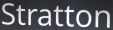
Stratton